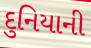
દુનિયાની